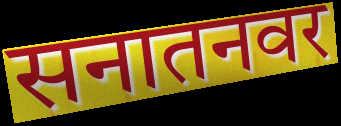
सनातनवर